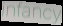
infancy